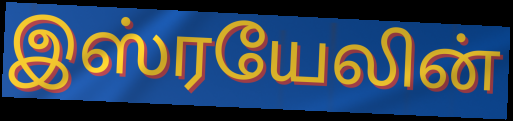
இஸ்ரயேலின்